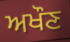
ਅਖੌਣ